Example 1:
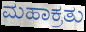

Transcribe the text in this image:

ಮಹಾಕ್ರತು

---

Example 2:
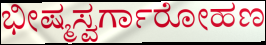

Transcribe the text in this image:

ಭೀಷ್ಮಸ್ವರ್ಗಾರೋಹಣ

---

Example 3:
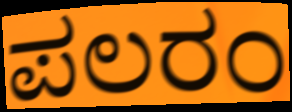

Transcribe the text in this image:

ಪಲರಂ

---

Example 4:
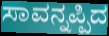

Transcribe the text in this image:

ಸಾವನ್ನಪ್ಪಿದ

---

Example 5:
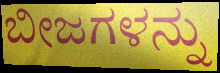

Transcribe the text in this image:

ಬೀಜಗಳನ್ನು